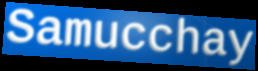
Samucchay